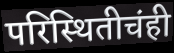
परिस्थितीचंही